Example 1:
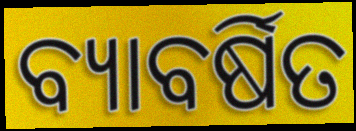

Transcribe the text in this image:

ବ୍ୟାବର୍ଷିତ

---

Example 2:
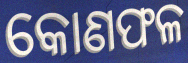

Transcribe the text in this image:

କୋଣଫଳ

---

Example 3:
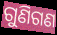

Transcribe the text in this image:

ଗୁଣିଗଣ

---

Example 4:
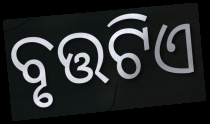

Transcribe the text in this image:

ବୃତ୍ତଟିଏ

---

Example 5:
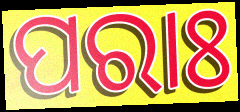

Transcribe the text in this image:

ପରାଃ